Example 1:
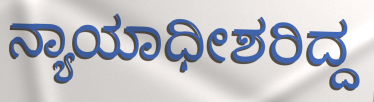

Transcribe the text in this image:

ನ್ಯಾಯಾಧೀಶರಿದ್ದ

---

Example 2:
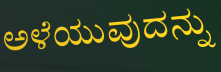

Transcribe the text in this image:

ಅಳೆಯುವುದನ್ನು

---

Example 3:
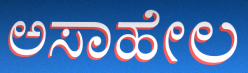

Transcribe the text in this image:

ಅಸಾಹೇಲ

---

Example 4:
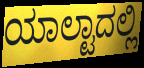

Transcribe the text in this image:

ಯಾಲ್ಟಾದಲ್ಲಿ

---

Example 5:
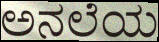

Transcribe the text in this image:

ಅನಲೆಯ